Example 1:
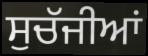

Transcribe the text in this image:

ਸੁਚੱਜੀਆਂ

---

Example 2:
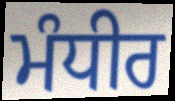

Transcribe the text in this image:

ਮੰਧੀਰ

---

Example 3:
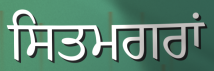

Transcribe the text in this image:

ਸਿਤਮਗਰਾਂ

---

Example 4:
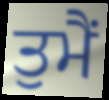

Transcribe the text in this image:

ਤੁਮੈਂ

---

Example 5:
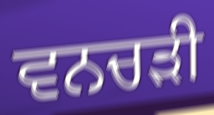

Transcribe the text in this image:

ਵਨਚੜੀ